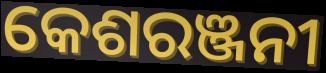
କେଶରଞ୍ଜନୀ